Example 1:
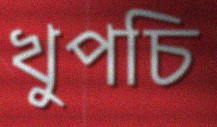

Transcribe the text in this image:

খুপচি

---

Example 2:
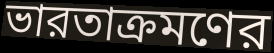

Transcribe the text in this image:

ভারতাক্রমণের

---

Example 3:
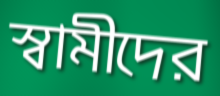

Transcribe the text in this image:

স্বামীদের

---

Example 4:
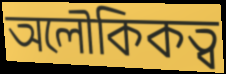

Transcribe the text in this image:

অলৌকিকত্ব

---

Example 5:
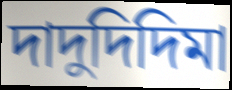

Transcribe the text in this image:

দাদুদিদিমা